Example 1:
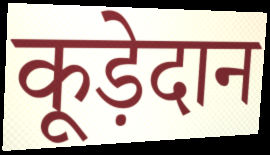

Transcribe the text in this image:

कूड़ेदान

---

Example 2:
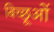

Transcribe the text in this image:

बिच्छूओं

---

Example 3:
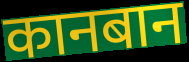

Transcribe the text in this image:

कानबान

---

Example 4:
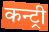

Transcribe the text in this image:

कन्ट्री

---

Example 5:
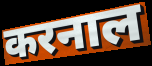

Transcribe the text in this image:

करनाल